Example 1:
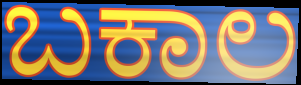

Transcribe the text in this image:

ಬಕಾಲ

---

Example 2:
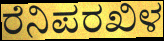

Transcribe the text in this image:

ರೆನಿಪರಖಿಳ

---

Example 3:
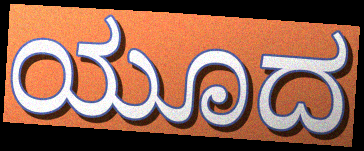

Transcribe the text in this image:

ಯೂದ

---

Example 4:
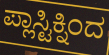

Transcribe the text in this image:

ಪ್ಲಾಸ್ಟಿಕ್ನಿಂದ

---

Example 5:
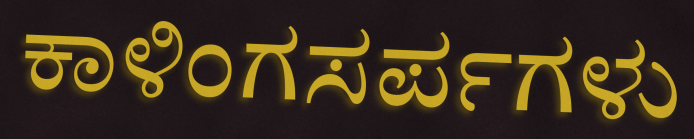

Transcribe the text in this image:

ಕಾಳಿಂಗಸರ್ಪಗಳು